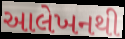
આલેખનથી